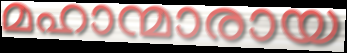
മഹാന്മാരായ